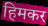
हिमकर